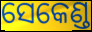
ସେକେଣ୍ଡ